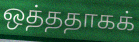
ஒத்ததாகக்